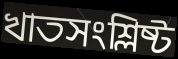
খাতসংশ্লিষ্ট